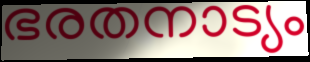
ഭരതനാട്യം